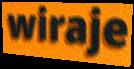
wiraje